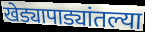
खेड्यापाड्यांतल्या